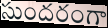
సుందరంగా